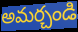
అమర్చండి